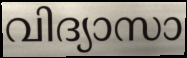
വിദ്യാസാ